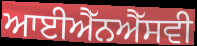
ਆਈਐੱਨਐੱਸਵੀ